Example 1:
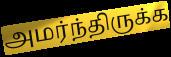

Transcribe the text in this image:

அமர்ந்திருக்க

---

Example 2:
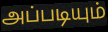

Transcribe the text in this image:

அப்படியும்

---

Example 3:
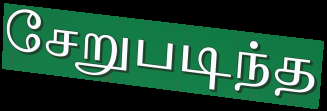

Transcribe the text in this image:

சேறுபடிந்த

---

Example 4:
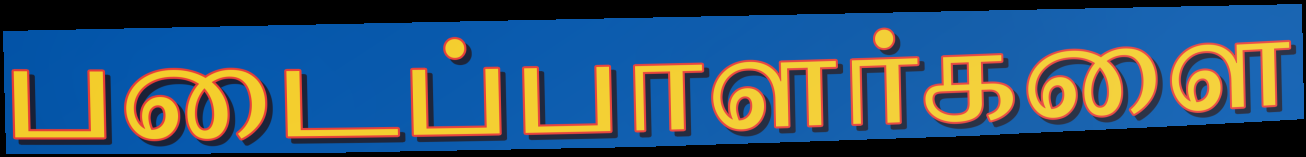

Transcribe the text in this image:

படைப்பாளர்களை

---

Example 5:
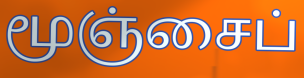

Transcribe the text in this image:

மூஞ்சைப்